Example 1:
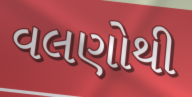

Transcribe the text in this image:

વલણોથી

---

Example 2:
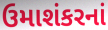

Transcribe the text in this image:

ઉમાશંકરનાં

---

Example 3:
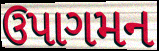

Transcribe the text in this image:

ઉપાગમન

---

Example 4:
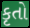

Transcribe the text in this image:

કૃતો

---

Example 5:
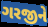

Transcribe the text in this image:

ગરજીને